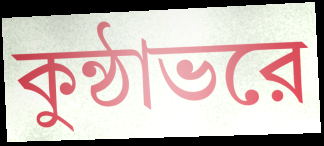
কুন্ঠাভরে